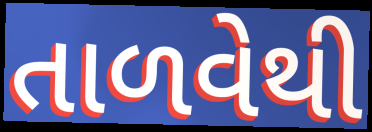
તાળવેથી